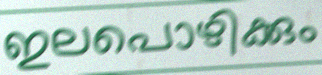
ഇലപൊഴിക്കും